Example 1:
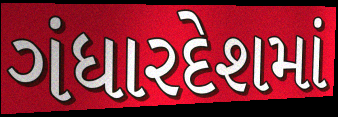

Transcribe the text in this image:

ગંધારદેશમાં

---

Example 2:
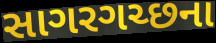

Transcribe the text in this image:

સાગરગચ્છના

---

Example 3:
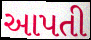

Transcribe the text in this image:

આપતી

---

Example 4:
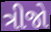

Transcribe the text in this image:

ત્રીજો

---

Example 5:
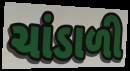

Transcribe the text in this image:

ચાંડાળી